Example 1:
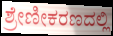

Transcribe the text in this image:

ಶ್ರೇಣೀಕರಣದಲ್ಲಿ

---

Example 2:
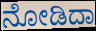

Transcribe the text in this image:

ನೋಡಿದಾ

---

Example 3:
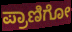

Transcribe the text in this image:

ಪ್ರಾಣಿಗೋ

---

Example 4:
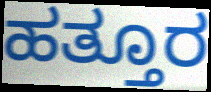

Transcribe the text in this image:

ಹತ್ತೂರ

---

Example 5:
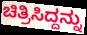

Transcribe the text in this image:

ಚಿತ್ರಿಸಿದ್ದನ್ನು